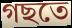
গছতে